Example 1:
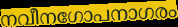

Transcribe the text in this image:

നവീനഗോപനാഗരം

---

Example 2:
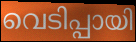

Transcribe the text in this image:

വെടിപ്പായി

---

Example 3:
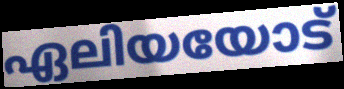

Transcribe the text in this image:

ഏലിയയോട്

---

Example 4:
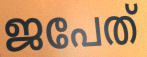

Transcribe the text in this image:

ജപേത്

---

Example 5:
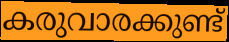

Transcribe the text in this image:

കരുവാരക്കുണ്ട്